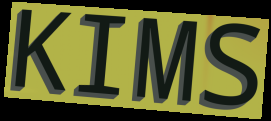
KIMS